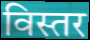
विस्तर